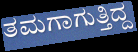
ತಮಗಾಗುತ್ತಿದ್ದ